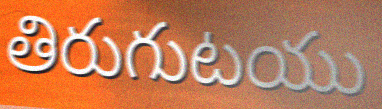
తిరుగుటయు